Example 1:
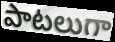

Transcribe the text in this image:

పాటలుగా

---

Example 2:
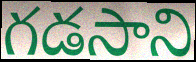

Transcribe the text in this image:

గడసాని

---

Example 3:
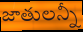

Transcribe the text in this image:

జాతులన్నీ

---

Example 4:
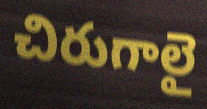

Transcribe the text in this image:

చిరుగాలై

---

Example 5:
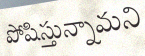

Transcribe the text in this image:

పోషిస్తున్నామని